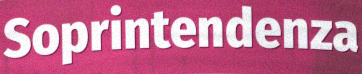
Soprintendenza